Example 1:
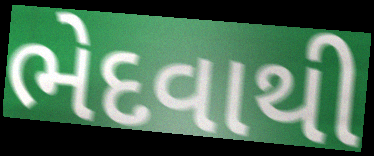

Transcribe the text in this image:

ભેદવાથી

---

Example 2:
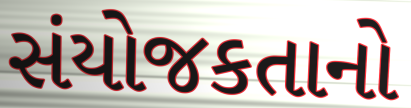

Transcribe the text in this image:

સંયોજકતાનો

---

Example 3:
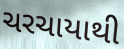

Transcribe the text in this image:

ચરચાયાથી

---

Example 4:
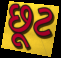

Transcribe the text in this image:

છૂટ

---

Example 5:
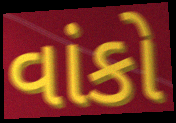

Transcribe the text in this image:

વાંકો